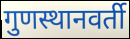
गुणस्थानवर्ती